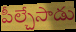
పీల్చేసాడు